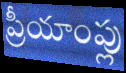
ప్రీయాంప్లు